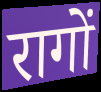
रागों